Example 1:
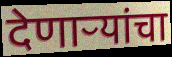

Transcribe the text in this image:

देणाऱ्यांचा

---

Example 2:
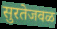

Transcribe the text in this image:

सुरतेजवळ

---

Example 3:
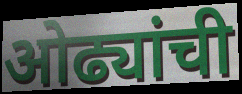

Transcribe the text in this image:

ओढ्यांची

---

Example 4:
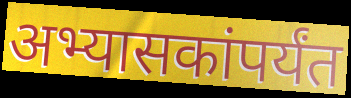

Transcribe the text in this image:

अभ्यासकांपर्यंत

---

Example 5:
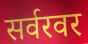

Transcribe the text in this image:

सर्वरवर